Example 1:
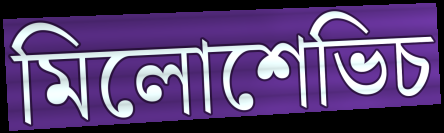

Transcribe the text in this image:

মিলোশেভিচ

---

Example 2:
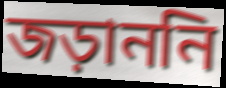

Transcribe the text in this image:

জড়াননি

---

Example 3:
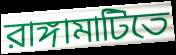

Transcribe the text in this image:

রাঙ্গামাটিতে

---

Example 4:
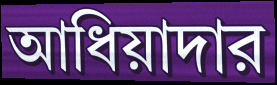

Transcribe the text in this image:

আধিয়াদার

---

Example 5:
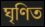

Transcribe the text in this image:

ঘৃণিত